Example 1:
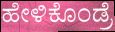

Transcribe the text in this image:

ಹೇಳಿಕೊಂಡ್ರೆ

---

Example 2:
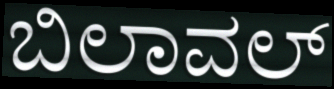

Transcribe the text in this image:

ಬಿಲಾವಲ್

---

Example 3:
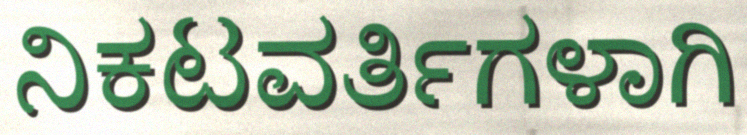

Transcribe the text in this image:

ನಿಕಟವರ್ತಿಗಳಾಗಿ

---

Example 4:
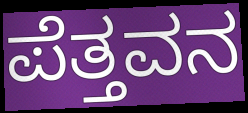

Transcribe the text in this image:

ಪೆತ್ತವನ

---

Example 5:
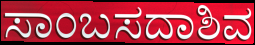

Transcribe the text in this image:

ಸಾಂಬಸದಾಶಿವ